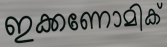
ഇക്കണോമിക്